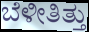
ಬೆಳೀತಿತ್ತು